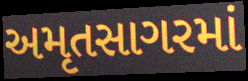
અમૃતસાગરમાં